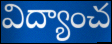
విద్యాంచ